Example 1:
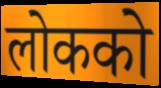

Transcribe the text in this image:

लोकको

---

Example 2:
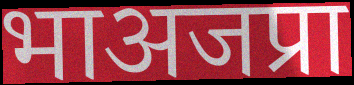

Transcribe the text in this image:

भाअजप्रा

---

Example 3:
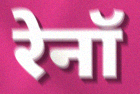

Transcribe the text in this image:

रेनॉ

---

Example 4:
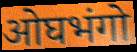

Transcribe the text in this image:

ओघभंगो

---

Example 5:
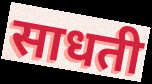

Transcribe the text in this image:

साधती